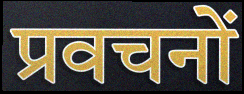
प्रवचनों